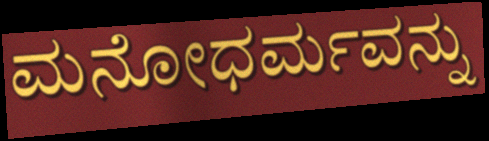
ಮನೋಧರ್ಮವನ್ನು